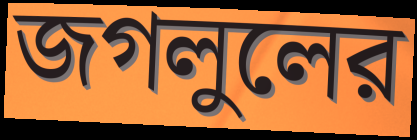
জগলুলের